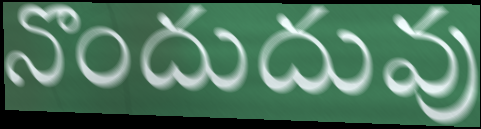
నొందుదువు